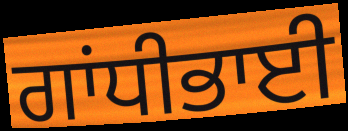
ਗਾਂਧੀਭਾਈ